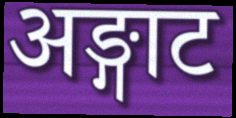
अङ्गाट